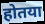
होतया